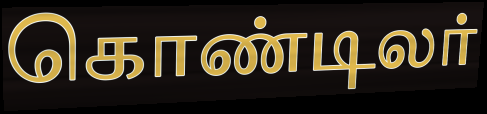
கொண்டிலர்